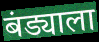
बंड्याला